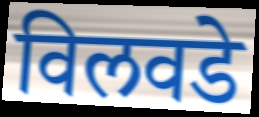
विलवडे